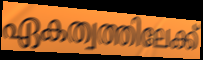
ഏകത്വത്തിലേക്ക്